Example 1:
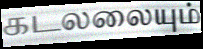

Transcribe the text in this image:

கடலலையும்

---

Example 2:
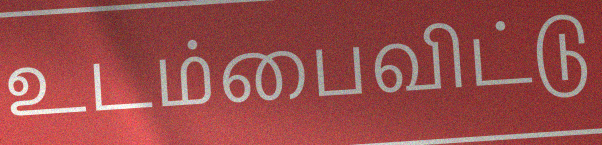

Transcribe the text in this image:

உடம்பைவிட்டு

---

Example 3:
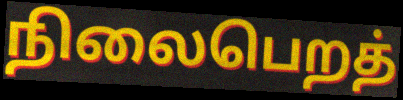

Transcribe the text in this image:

நிலைபெறத்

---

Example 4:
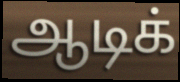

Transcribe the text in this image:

ஆடிக்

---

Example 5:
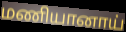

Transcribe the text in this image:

மணியானாய்